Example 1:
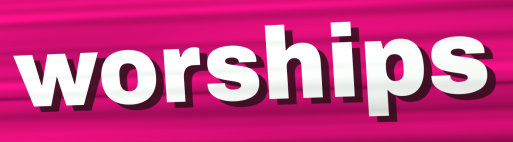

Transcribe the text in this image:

worships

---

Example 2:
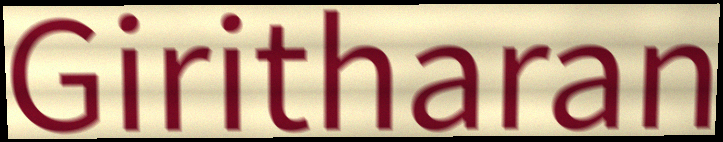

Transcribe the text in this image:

Giritharan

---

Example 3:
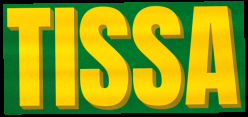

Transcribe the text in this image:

TISSA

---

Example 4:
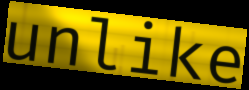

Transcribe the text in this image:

unlike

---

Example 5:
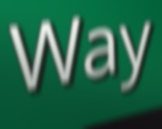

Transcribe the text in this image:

Way